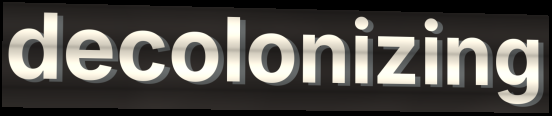
decolonizing